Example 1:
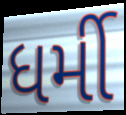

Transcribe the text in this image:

ધર્મી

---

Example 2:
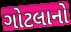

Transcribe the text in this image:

ગોટલાનો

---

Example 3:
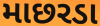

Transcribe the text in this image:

માછરડા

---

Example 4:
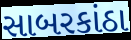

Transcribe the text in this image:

સાબરકાંઠા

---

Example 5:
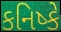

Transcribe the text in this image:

કનિષ્કે